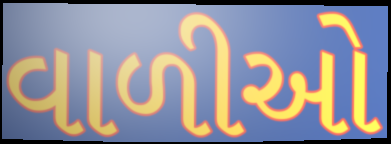
વાળીઓ